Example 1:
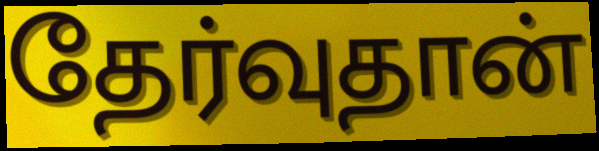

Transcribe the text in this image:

தேர்வுதான்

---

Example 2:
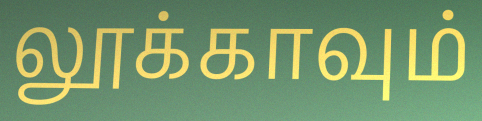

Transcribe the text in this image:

லூக்காவும்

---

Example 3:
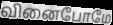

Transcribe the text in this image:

வினைபோமே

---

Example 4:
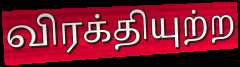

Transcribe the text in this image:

விரக்தியுற்ற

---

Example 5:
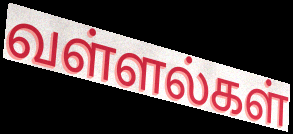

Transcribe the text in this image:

வள்ளல்கள்